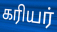
கரியர்